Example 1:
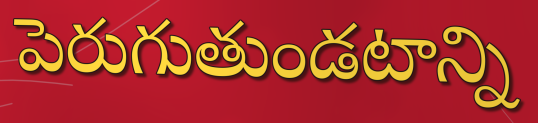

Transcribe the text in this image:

పెరుగుతుండటాన్ని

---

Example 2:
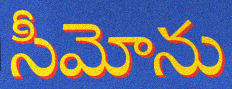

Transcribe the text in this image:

సీమోను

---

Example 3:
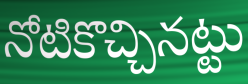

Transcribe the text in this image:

నోటికొచ్చినట్టు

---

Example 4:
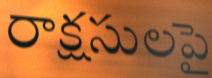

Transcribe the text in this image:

రాక్షసులపై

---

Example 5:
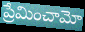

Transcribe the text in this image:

ప్రేమించామో